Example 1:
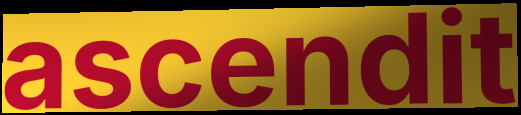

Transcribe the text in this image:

ascendit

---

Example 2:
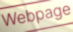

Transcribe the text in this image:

Webpage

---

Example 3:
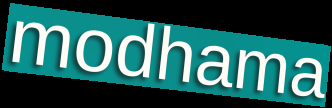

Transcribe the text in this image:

modhama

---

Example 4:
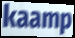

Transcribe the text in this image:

kaamp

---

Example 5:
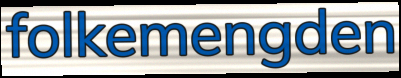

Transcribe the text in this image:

folkemengden